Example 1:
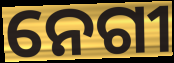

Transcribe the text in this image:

ନେଗୀ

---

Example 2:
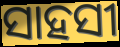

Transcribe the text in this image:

ସାହସୀ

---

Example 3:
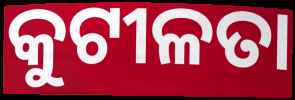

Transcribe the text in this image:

କୁଟୀଳତା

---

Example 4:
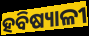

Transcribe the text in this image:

ହବିଷ୍ୟାଳୀ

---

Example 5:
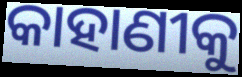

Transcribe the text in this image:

କାହାଣୀକୁ